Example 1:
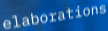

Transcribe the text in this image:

elaborations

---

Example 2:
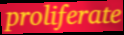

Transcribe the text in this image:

proliferate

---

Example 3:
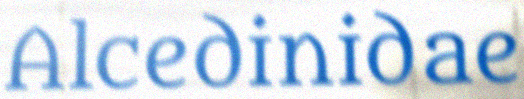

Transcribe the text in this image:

Alcedinidae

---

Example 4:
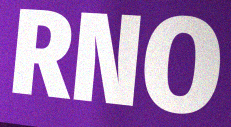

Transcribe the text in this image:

RNO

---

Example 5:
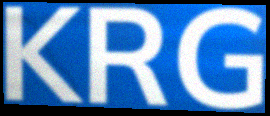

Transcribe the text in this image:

KRG